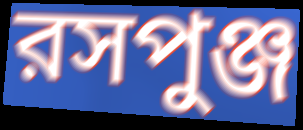
রসপুঞ্জ